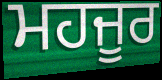
ਮਹਜੂਰ